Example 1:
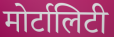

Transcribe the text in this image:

मोर्टालिटी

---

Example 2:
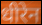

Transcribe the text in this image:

धीरेन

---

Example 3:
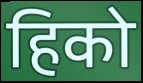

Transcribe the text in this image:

हिको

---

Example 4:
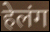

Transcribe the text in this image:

हेलंग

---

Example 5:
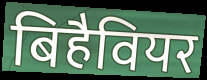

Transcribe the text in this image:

बिहैवियर